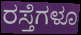
ರಸ್ತೆಗಳೂ